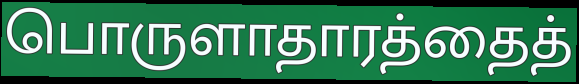
பொருளாதாரத்தைத்